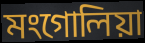
মংগোলিয়া